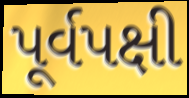
પૂર્વપક્ષી